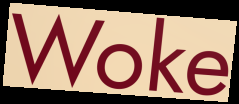
Woke